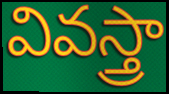
వివస్త్రా